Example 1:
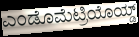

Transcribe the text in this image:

ಎಂಡೊಮೆಟ್ರಿಯೊಯ್ಡ್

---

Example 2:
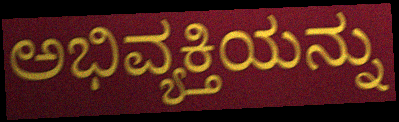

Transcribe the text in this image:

ಅಭಿವ್ಯಕ್ತಿಯನ್ನು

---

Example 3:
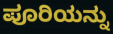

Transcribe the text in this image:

ಪೂರಿಯನ್ನು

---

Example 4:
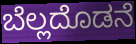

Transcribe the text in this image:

ಬೆಲ್ಲದೊಡನೆ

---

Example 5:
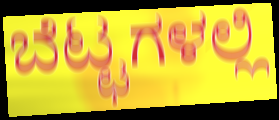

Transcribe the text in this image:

ಬೆಟ್ಟಗಳಲ್ಲಿ